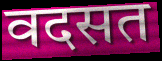
वदसत